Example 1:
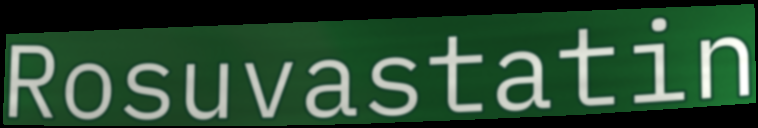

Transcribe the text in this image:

Rosuvastatin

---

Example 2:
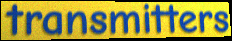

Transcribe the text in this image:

transmitters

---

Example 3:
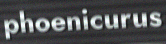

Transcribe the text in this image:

phoenicurus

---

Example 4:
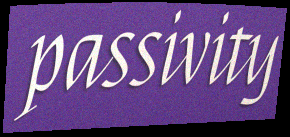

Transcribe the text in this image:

passivity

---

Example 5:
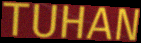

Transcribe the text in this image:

TUHAN